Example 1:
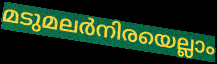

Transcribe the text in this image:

മടുമലർനിരയെല്ലാം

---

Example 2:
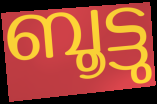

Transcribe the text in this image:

ബൂട്ടു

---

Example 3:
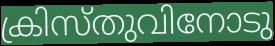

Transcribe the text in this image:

ക്രിസ്തുവിനോടു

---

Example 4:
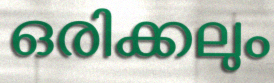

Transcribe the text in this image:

ഒരിക്കലും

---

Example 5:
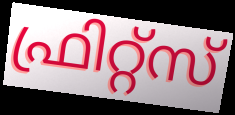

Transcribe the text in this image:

ഫ്രിറ്റ്സ്